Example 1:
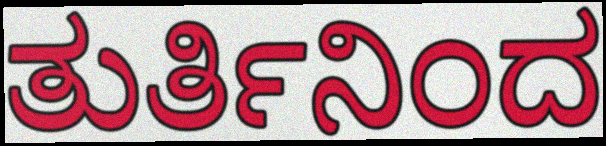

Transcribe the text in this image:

ತುರ್ತಿನಿಂದ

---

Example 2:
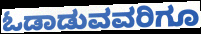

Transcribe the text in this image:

ಓಡಾಡುವವರಿಗೂ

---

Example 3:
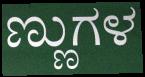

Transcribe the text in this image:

ಣ್ಣುಗಳ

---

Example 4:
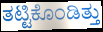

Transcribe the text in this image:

ತಟ್ಟಿಕೊಂಡಿತ್ತು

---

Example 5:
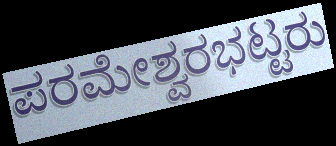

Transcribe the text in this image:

ಪರಮೇಶ್ವರಭಟ್ಟರು